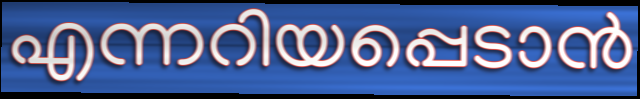
എന്നറിയപ്പെടാൻ